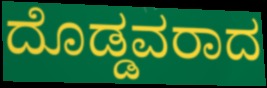
ದೊಡ್ಡವರಾದ